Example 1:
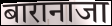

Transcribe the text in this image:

बारानाजा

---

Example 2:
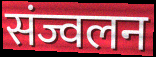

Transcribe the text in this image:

संज्वलन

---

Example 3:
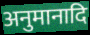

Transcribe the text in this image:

अनुमानादि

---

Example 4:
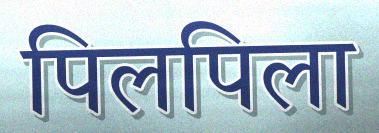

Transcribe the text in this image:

पिलपिला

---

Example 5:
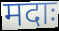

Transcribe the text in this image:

मदाः